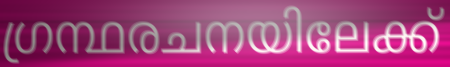
ഗ്രന്ഥരചനയിലേക്ക്